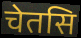
चेतसि